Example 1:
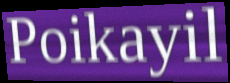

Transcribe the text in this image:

Poikayil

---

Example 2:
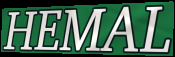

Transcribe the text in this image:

HEMAL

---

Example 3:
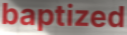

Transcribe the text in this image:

baptized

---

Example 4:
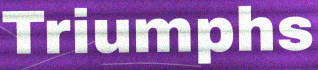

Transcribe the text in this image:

Triumphs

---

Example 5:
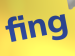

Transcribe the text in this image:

fing